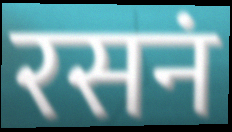
रसनं